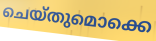
ചെയ്തുമൊക്കെ